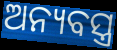
ଅନ୍ୟବସ୍ତ୍ର